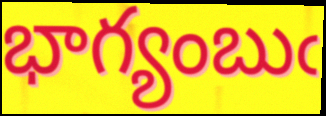
భాగ్యంబుఁ